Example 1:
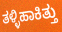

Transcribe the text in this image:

ತಳ್ಳಿಹಾಕಿತ್ತು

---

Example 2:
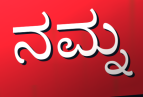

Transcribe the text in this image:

ನಮ್ನ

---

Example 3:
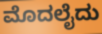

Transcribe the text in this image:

ಮೊದಲೈದು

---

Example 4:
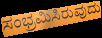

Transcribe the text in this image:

ಸಂಭ್ರಮಿಸಿರುವುದು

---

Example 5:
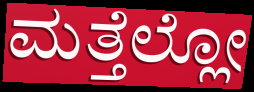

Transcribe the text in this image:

ಮತ್ತೆಲ್ಲೋ